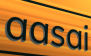
aasai